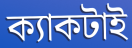
ক্যাকটাই